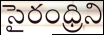
సైరంధ్రిని